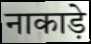
नाकाड़े